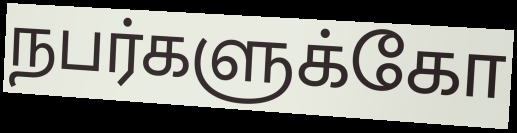
நபர்களுக்கோ